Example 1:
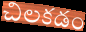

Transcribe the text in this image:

చిలకడం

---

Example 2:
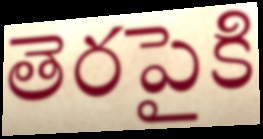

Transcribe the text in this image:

తెరపైకి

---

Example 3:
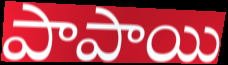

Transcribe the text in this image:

పాపాయి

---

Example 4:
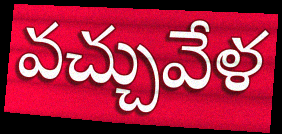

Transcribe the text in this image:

వచ్చువేళ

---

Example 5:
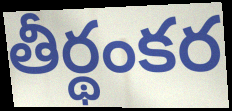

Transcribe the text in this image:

తీర్థంకర